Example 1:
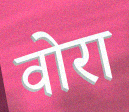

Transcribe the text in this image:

वोरा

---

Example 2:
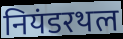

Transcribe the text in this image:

नियंडरथल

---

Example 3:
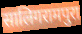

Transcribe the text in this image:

सालिगरामपुरा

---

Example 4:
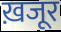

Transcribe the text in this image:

ख़जूर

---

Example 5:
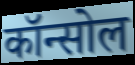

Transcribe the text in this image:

कॉन्सोल